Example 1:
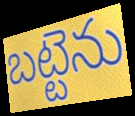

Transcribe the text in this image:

బట్టెను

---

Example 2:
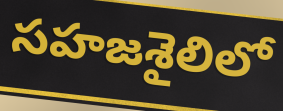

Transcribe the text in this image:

సహజశైలిలో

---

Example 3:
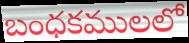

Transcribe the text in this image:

బంధకములలో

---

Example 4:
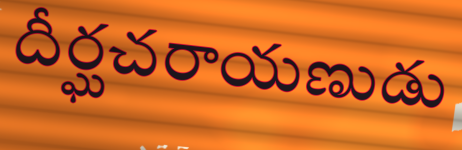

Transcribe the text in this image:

దీర్ఘచరాయణుడు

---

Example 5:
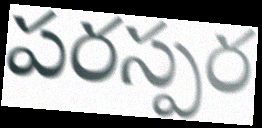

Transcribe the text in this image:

పరస్పర